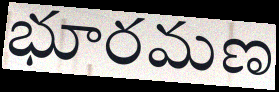
భూరమణ